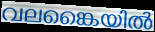
വലങ്കൈയിൽ